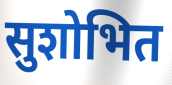
सुशोभित